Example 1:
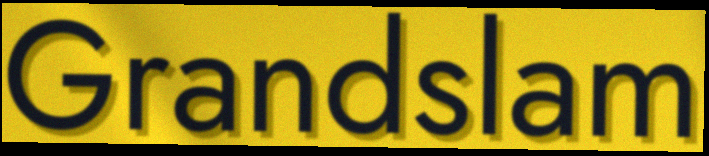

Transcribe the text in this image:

Grandslam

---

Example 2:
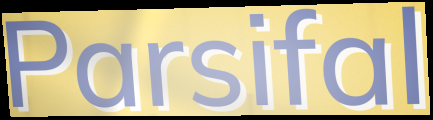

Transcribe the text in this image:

Parsifal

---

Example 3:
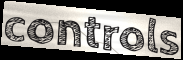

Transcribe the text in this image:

controls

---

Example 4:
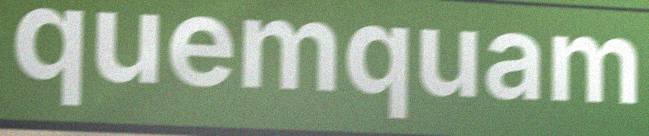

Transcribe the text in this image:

quemquam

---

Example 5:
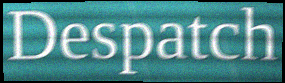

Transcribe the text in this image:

Despatch